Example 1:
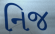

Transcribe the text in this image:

નિજ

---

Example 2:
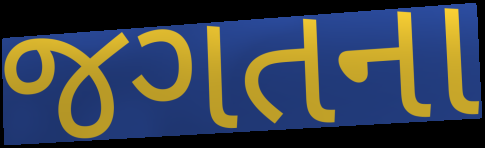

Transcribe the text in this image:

જગતના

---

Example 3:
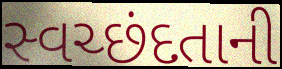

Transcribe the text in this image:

સ્વચ્છંદતાની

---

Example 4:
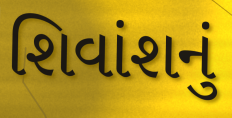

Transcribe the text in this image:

શિવાંશનું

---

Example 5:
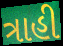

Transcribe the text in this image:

ત્રાહી